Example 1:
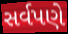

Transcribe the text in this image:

સર્વપણે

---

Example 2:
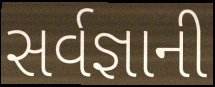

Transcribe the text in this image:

સર્વજ્ઞાની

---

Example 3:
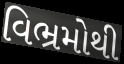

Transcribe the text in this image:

વિભ્રમોથી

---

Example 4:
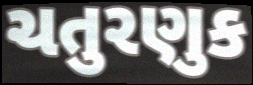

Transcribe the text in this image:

ચતુરણુક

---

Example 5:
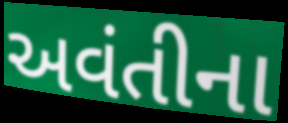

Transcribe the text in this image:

અવંતીના